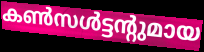
കൺസൾട്ടന്റുമായ